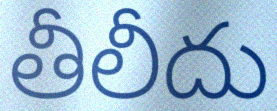
తీలీదు